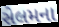
સેલમના